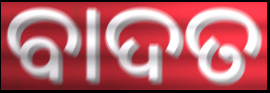
ବାଦତ